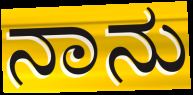
ನಾನು